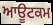
ਆਊਟਕਮ